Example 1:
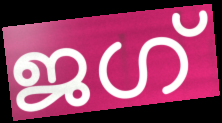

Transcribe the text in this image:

ജഗ്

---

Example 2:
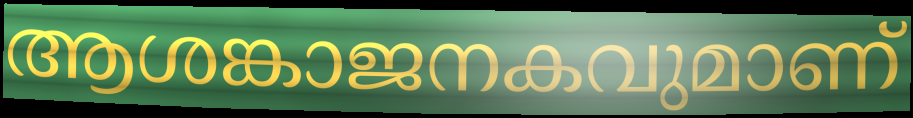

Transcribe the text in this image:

ആശങ്കാജനകവുമാണ്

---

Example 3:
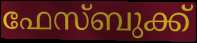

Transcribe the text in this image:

ഫേസ്ബുക്ക്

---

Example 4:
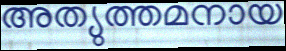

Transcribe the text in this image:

അത്യുത്തമനായ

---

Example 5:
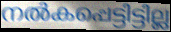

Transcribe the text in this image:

നൽകപ്പെട്ടിട്ടില്ല